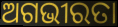
ଅଗଭୀରତା